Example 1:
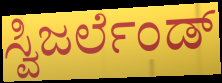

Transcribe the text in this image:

ಸ್ವಿಜರ್ಲೆಂಡ್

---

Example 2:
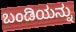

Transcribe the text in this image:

ಬಂಡಿಯನ್ನು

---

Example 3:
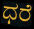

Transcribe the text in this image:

ಧರೆ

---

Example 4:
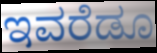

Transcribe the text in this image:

ಇವರೆಡೂ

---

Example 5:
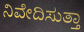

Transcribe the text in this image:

ನಿವೇದಿಸುತ್ತಾ